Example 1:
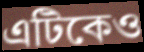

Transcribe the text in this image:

এটিকেও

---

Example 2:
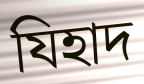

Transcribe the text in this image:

যিহাদ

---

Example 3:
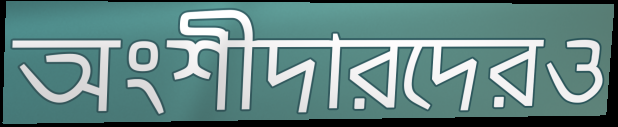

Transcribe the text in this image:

অংশীদারদেরও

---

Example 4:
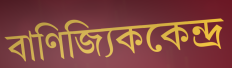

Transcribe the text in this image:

বাণিজ্যিককেন্দ্র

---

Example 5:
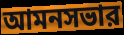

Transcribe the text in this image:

আমনসভার